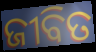
ଜୀବିତ